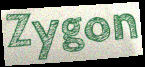
Zygon